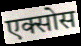
एक्सोस